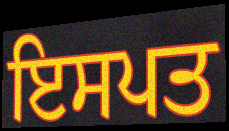
ਇਸਪਤ